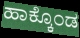
ಹಾಕ್ಕೊಂಡ